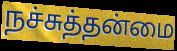
நச்சுத்தன்மை